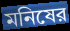
মনিষের